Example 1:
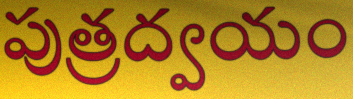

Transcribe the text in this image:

పుత్రద్వయం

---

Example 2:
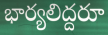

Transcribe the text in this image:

భార్యలిద్దరూ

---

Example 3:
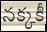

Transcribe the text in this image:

నక్కకీ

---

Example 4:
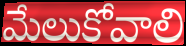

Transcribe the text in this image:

మేలుకోవాలి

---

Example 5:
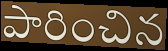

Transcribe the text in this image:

పారించిన